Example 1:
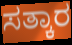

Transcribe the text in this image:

ಸತ್ಕಾರ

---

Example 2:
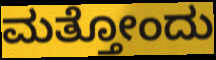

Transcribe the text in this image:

ಮತ್ತೋಂದು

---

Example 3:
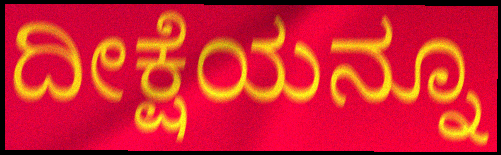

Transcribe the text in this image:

ದೀಕ್ಷೆಯನ್ನೂ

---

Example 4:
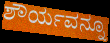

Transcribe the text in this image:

ಶೌರ್ಯವನ್ನೂ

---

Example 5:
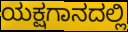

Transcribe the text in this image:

ಯಕ್ಷಗಾನದಲ್ಲಿ